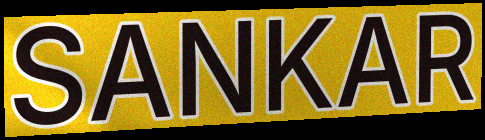
SANKAR